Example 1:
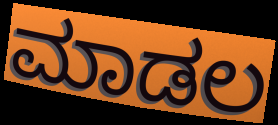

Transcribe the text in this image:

ಮಾಡಲ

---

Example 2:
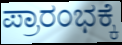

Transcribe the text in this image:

ಪ್ರಾರಂಭಕ್ಕೆ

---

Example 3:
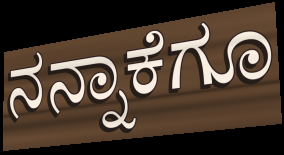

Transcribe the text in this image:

ನನ್ನಾಕೆಗೂ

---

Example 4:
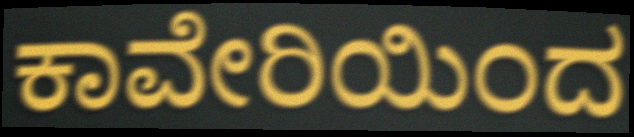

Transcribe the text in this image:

ಕಾವೇರಿಯಿಂದ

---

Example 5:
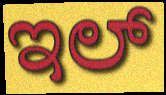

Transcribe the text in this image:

ಇಲ್